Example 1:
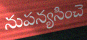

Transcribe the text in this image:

నుపన్యసించె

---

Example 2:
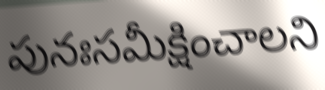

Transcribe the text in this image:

పునఃసమీక్షించాలని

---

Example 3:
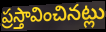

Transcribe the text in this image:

ప్రస్తావించినట్లు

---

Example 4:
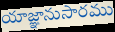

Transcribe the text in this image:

యాజ్ఞానుసారము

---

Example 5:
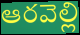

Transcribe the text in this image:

ఆరవెల్లి